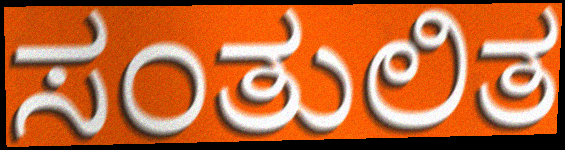
ಸಂತುಲಿತ